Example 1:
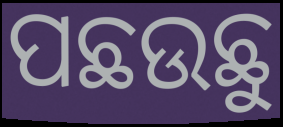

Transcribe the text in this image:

ପଛଉଛୁ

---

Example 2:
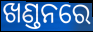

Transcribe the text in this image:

ଖଣ୍ଡନରେ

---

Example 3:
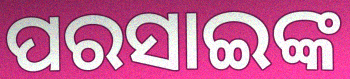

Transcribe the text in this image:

ପରସାଇଙ୍କ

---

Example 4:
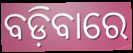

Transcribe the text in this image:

ବଡ଼ିବାରେ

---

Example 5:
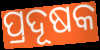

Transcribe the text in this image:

ପ୍ରଦୂଷକ